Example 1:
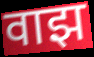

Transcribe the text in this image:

वाझ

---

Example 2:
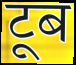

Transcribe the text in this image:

टूब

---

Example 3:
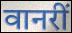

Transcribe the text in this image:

वानरीं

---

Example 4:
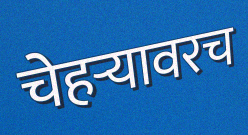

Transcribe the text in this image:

चेहर्‍यावरच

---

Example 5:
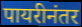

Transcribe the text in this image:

पायरीनंतर